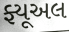
ફ્યૂઅલ